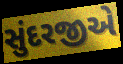
સુંદરજીએ